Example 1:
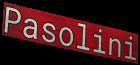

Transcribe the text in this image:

Pasolini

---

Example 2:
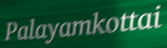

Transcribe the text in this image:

Palayamkottai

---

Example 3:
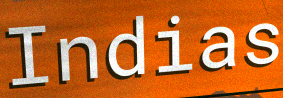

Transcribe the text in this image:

Indias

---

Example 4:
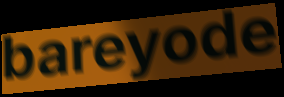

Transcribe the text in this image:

bareyode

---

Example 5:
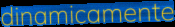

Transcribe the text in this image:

dinamicamente